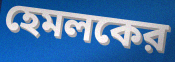
হেমলকের